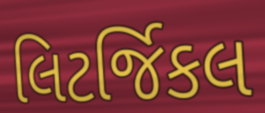
લિટર્જિકલ